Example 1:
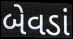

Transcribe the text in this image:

બેવડાં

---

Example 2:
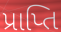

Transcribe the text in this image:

પ્રાપ્તિ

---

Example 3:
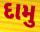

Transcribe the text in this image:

દામુ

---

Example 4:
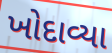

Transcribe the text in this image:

ખોદાવ્યા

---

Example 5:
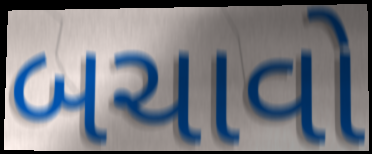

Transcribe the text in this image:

બચાવો